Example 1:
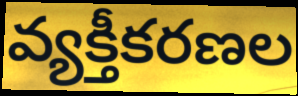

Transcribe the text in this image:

వ్యక్తీకరణల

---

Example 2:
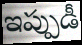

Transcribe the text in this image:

ఇప్పుడీ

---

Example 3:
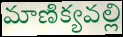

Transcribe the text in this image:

మాణిక్యవల్లి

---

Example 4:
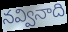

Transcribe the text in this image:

నవ్వినాది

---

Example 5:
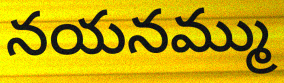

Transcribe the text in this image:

నయనమ్ము